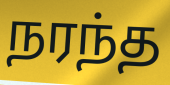
நரந்த